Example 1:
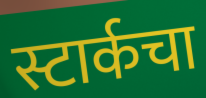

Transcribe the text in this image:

स्टार्कचा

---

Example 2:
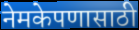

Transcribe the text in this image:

नेमकेपणासाठी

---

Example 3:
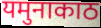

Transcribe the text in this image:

यमुनाकाठ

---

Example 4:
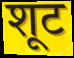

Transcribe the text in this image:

शूट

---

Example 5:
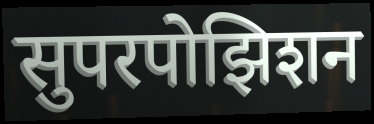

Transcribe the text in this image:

सुपरपोझिशन